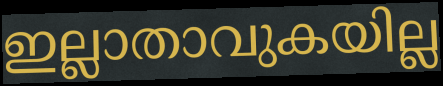
ഇല്ലാതാവുകയില്ല